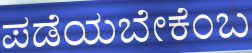
ಪಡೆಯಬೇಕೆಂಬ